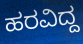
ಹರವಿದ್ದ